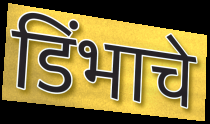
डिंभाचे